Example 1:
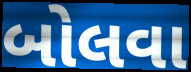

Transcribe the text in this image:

બોલવા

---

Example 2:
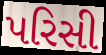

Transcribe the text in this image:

પરિસી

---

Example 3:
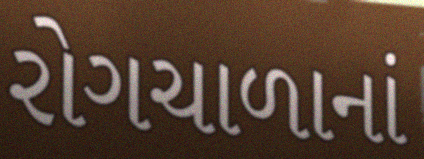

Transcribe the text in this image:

રોગચાળાનાં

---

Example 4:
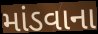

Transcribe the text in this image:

માંડવાના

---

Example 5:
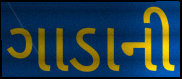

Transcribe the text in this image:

ગાડાની